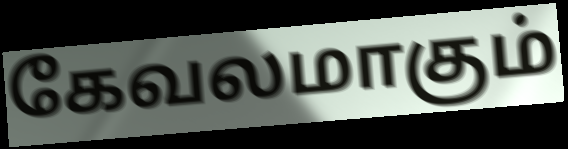
கேவலமாகும்